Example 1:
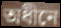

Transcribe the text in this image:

অধীনে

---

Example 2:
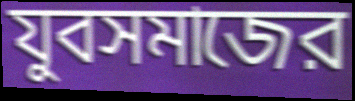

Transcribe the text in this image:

যুবসমাজের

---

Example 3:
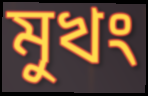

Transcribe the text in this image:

মুখং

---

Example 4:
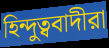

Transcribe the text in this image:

হিন্দুত্ববাদীরা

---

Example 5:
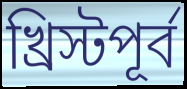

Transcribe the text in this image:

খ্রিস্টপূর্ব